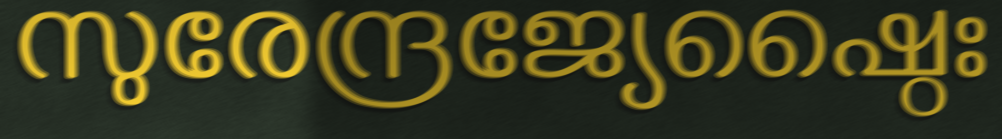
സുരേന്ദ്രജ്യേഷ്ഠൈഃ